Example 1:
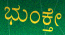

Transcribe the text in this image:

ಭುಂಕ್ತೇ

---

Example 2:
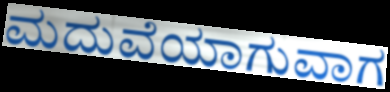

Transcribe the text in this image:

ಮದುವೆಯಾಗುವಾಗ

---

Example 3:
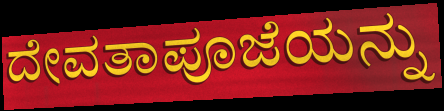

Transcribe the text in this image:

ದೇವತಾಪೂಜೆಯನ್ನು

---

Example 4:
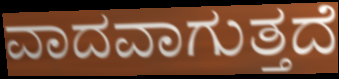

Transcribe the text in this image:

ವಾದವಾಗುತ್ತದೆ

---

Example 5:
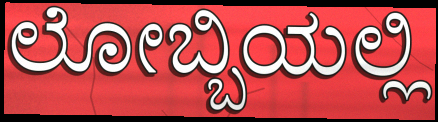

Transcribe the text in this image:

ಲೋಬ್ಬಿಯಲ್ಲಿ